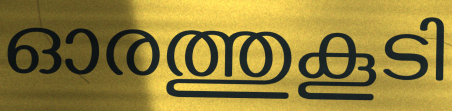
ഓരത്തുകൂടി